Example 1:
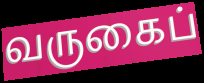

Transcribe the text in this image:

வருகைப்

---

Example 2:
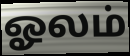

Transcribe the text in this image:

ஓலம்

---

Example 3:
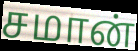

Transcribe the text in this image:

சமான்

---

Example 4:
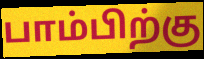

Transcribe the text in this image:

பாம்பிற்கு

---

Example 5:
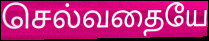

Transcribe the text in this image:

செல்வதையே